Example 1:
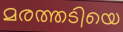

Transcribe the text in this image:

മരത്തടിയെ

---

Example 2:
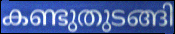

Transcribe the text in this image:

കണ്ടുതുടങ്ങി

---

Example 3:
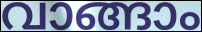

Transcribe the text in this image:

വാങ്ങാം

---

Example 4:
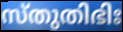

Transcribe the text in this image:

സ്തുതിഭിഃ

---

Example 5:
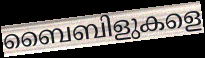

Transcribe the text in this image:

ബൈബിളുകളെ